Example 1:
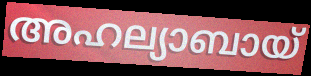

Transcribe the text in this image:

അഹല്യാബായ്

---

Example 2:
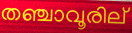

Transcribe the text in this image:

തഞ്ചാവൂരില്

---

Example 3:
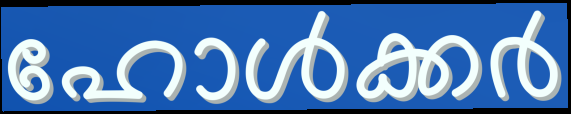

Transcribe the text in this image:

ഹോൾക്കർ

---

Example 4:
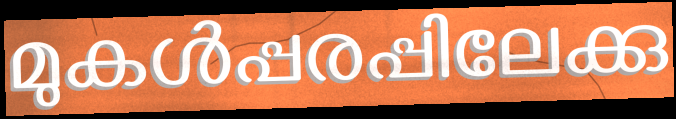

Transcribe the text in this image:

മുകൾപ്പരപ്പിലേക്കു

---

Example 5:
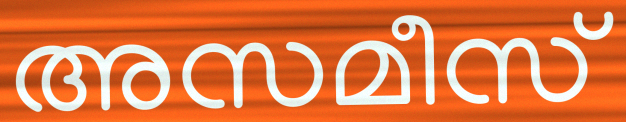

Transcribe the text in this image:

അസമീസ്